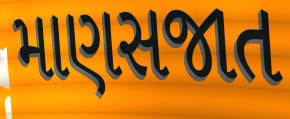
માણસજાત